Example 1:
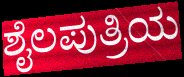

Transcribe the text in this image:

ಶೈಲಪುತ್ರಿಯ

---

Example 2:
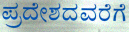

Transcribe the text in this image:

ಪ್ರದೇಶದವರೆಗೆ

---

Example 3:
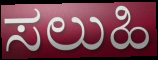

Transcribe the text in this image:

ಸಲುಹಿ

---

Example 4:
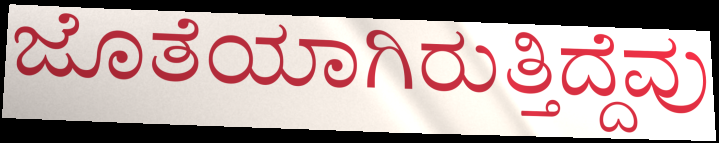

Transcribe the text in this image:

ಜೊತೆಯಾಗಿರುತ್ತಿದ್ದೆವು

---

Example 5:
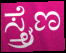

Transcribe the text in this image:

ಸ್ತ್ರೈಣ